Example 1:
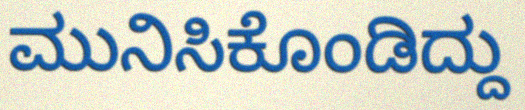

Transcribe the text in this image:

ಮುನಿಸಿಕೊಂಡಿದ್ದು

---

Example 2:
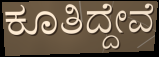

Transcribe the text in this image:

ಕೂತಿದ್ದೇವೆ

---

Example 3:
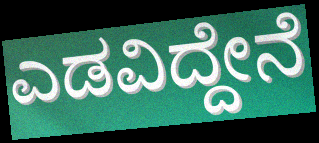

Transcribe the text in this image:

ಎಡವಿದ್ದೇನೆ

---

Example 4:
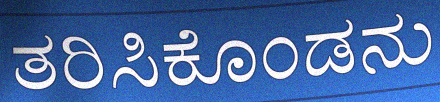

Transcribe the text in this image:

ತರಿಸಿಕೊಂಡನು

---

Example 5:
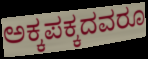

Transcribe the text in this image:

ಅಕ್ಕಪಕ್ಕದವರೂ